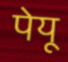
पेयू